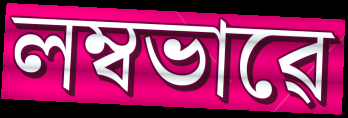
লম্বভাৱে